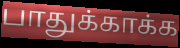
பாதுக்காக்க